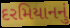
દરમિયાનનું